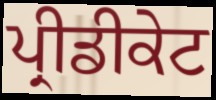
ਪ੍ਰੀਡੀਕੇਟ